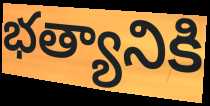
భత్యానికి